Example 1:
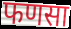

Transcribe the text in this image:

फणसा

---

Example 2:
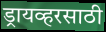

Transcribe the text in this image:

ड्रायव्हरसाठी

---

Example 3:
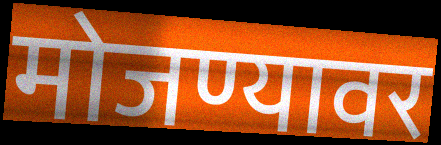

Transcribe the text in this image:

मोजण्यावर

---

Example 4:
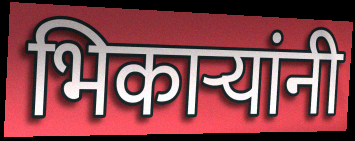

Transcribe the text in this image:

भिकाऱ्यांनी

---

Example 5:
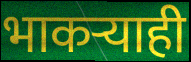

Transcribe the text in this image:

भाकऱ्याही